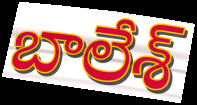
బాలేశ్